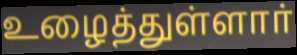
உழைத்துள்ளார்